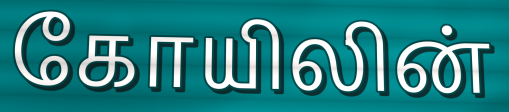
கோயிலின்